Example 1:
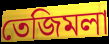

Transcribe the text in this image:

তেজিমলা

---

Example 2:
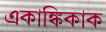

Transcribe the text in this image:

একাঙ্কিকাক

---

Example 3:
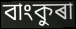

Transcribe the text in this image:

বাংকুৰা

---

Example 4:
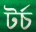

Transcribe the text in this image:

টৰ্চ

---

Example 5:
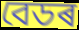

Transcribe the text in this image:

বেডৰ